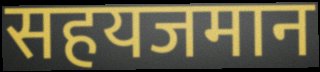
सहयजमान